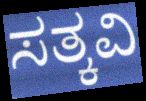
ಸತ್ಕವಿ